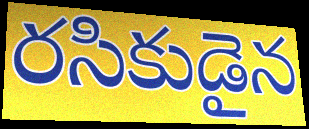
రసికుడైన